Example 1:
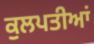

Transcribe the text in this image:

ਕੁਲਪਤੀਆਂ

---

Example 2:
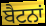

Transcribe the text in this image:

ਬੈਟਨਾਂ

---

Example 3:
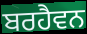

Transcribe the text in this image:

ਬਰਹੈਵਨ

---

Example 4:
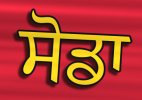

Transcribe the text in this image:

ਸੋਡਾ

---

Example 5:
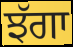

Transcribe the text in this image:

ਝੱਗਾ